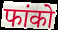
फांको